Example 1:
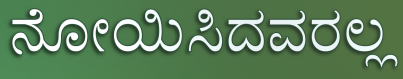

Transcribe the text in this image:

ನೋಯಿಸಿದವರಲ್ಲ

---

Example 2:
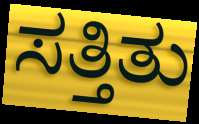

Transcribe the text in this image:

ಸತ್ತಿತು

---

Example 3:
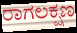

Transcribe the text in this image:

ರಾಗಲಕ್ಷಣ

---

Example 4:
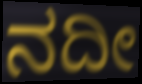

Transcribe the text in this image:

ನದೀ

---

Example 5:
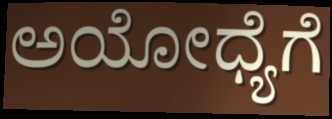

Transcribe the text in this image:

ಅಯೋಧ್ಯೆಗೆ